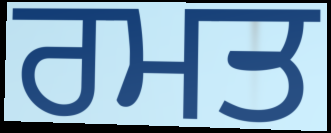
ਰਮਤ